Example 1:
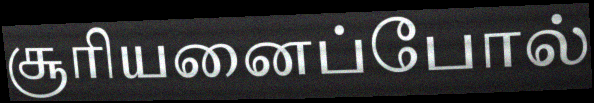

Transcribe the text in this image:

சூரியனைப்போல்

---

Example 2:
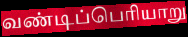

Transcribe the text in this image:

வண்டிப்பெரியாறு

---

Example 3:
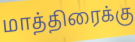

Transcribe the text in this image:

மாத்திரைக்கு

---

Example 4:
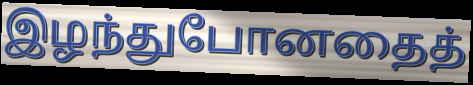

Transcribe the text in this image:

இழந்துபோனதைத்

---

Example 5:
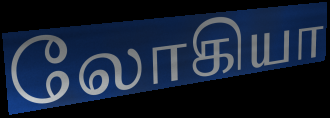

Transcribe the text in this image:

லோகியா